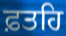
ਫ਼ਤਹਿ